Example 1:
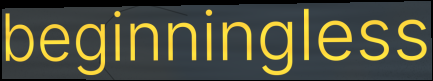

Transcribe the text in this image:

beginningless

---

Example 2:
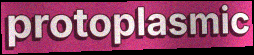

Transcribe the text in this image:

protoplasmic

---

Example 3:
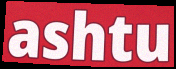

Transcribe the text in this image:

ashtu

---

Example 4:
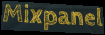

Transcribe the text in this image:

Mixpanel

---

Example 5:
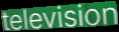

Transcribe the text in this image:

television